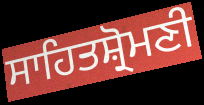
ਸਾਹਿਤਸ਼੍ਰੋਮਣੀ